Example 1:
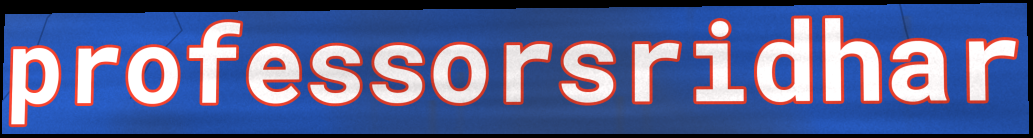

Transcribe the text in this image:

professorsridhar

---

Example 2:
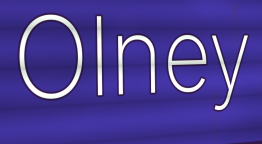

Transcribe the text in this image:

Olney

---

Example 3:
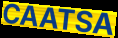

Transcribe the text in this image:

CAATSA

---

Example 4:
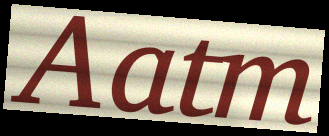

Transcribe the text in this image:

Aatm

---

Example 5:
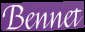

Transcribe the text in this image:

Bennet